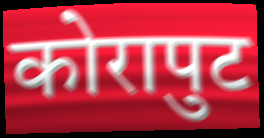
कोरापुट